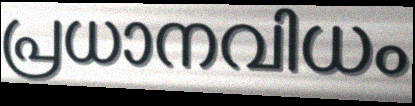
പ്രധാനവിധം